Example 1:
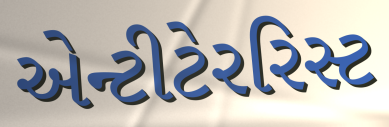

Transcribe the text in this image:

એન્ટીટેરરિસ્ટ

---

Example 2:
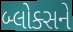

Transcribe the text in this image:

બ્લોક્સને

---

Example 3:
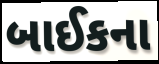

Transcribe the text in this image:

બાઈકના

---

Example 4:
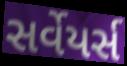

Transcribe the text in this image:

સર્વેયર્સ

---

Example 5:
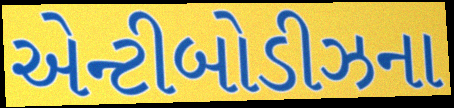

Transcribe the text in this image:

એન્ટીબોડીઝના